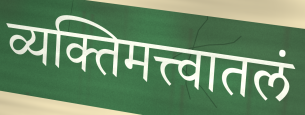
व्यक्तिमत्त्वातलं